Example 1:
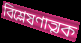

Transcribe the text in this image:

বিশ্লেষণাত্মক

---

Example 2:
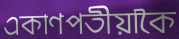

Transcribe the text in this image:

একাণপতীয়াকৈ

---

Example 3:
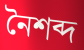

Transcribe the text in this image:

নৈশব্দ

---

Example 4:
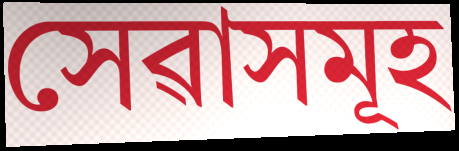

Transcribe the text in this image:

সেৱাসমূহ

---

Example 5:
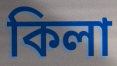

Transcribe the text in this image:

কিলা